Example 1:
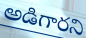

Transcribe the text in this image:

అడిగారని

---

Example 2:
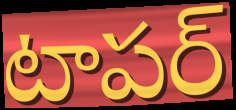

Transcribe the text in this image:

టాపర్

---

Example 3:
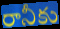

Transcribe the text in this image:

రానీకు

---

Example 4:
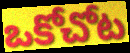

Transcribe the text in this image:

ఒకోచోట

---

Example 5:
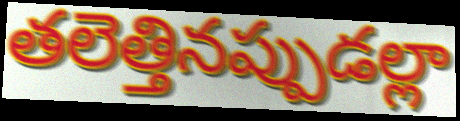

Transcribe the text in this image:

తలెత్తినప్పుడల్లా